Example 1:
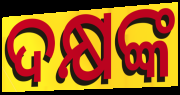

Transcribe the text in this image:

ଦକ୍ଷଙ୍କ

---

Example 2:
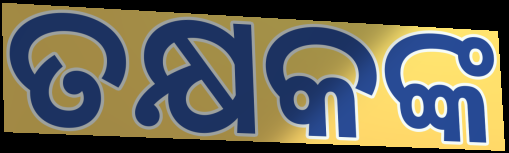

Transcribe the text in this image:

ତକ୍ଷକଙ୍କ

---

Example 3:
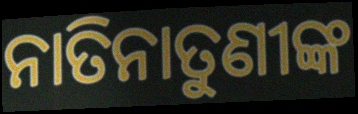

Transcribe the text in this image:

ନାତିନାତୁଣୀଙ୍କ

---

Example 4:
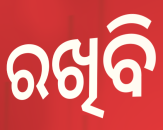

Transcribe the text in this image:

ରଖିବି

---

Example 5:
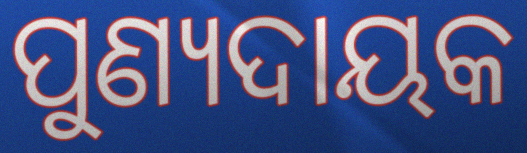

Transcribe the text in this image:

ପୁଣ୍ୟଦାୟକ